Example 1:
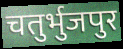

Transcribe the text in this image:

चतुर्भुजपुर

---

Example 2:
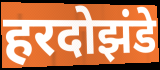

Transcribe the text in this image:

हरदोझंडे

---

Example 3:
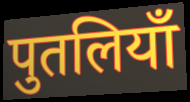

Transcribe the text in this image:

पुतलियाँ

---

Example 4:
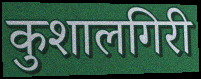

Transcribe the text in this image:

कुशालगिरी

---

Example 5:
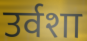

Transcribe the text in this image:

उर्वशा